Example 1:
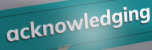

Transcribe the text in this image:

acknowledging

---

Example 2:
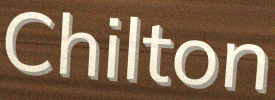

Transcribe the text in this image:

Chilton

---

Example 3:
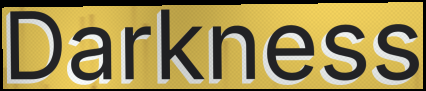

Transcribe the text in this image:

Darkness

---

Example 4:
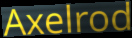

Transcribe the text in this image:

Axelrod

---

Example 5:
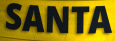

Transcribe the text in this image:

SANTA